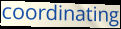
coordinating